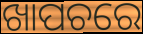
ଖାପଚରେ